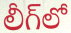
లీగ్‌లో